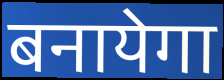
बनायेगा